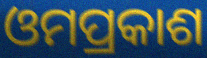
ଓମପ୍ରକାଶ